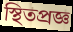
স্থিতপ্রজ্ঞ